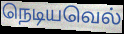
நெடியவெல்